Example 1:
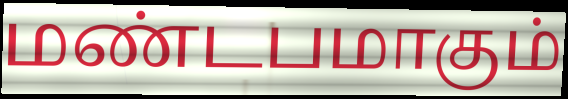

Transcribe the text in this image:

மண்டபமாகும்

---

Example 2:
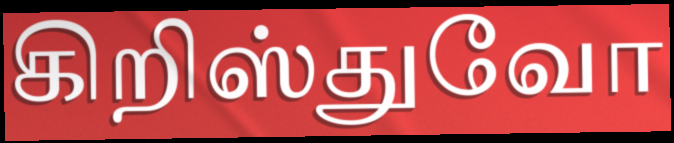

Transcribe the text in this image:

கிறிஸ்துவோ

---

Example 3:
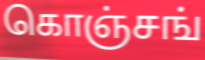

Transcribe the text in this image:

கொஞ்சங்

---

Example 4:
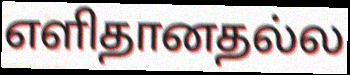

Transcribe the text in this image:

எளிதானதல்ல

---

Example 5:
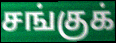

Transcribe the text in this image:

சங்குக்